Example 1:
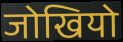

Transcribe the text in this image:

जोखियो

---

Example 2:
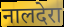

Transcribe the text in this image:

नालदेरा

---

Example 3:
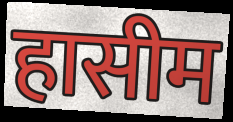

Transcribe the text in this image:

हासीम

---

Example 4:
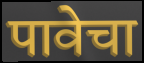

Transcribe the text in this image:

पावेचा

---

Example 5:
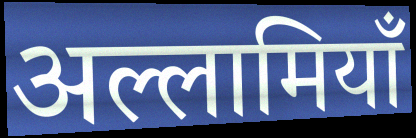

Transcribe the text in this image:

अल्लामियाँ